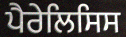
ਪੈਰੇਲਿਸਿਸ